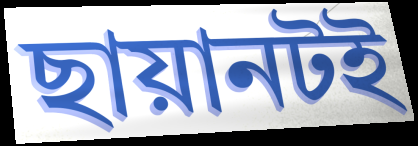
ছায়ানটই